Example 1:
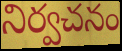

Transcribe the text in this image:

నిర్వచనం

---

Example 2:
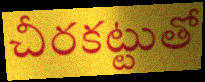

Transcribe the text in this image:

చీరకట్టుతో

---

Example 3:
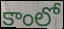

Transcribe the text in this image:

కాంలో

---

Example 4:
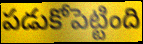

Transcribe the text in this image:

పడుకోపెట్టింది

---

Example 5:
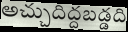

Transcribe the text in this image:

అచ్చుదిద్దబడ్డది